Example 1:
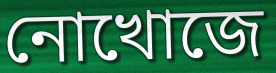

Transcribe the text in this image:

নোখোজে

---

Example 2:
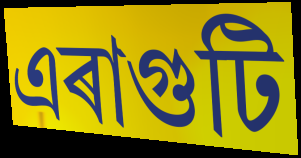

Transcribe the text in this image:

এৰাগুটি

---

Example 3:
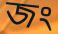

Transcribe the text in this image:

জং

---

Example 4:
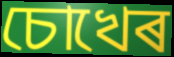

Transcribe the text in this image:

চোখেৰ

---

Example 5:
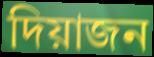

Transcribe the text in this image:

দিয়াজন